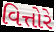
વિત્તોરે